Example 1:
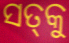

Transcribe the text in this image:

ସତ୍‌କୁ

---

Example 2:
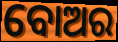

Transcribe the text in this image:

ବୋଅର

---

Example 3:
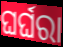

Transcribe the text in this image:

ଘର୍ଘରା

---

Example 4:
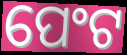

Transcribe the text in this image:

ପେଂଟ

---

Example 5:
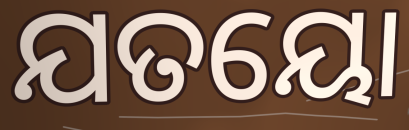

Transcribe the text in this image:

ଯତୟୋ